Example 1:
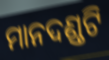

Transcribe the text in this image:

ମାନଦଣ୍ଡଟି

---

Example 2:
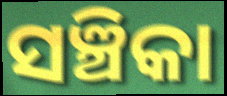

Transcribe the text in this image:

ସଞ୍ଚିକା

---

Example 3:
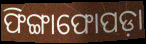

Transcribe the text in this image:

ଫିଙ୍ଗାଫୋପଡ଼ା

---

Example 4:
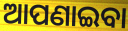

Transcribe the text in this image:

ଆପଣାଇବା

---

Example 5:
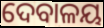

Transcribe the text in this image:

ଦେବାଳୟ